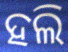
ହଲି